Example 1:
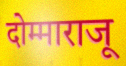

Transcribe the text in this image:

दोम्माराजू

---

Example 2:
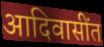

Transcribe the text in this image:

आदिवासींत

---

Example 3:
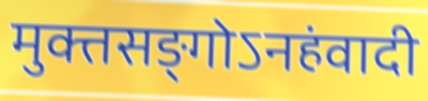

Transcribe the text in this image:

मुक्तसङ्गोऽनहंवादी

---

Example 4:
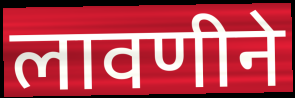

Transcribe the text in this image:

लावणीने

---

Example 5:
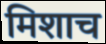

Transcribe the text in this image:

मिशाच